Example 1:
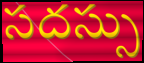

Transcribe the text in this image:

సదస్సు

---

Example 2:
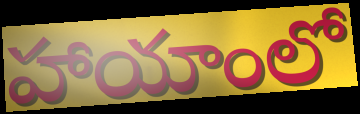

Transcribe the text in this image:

హాయాంలో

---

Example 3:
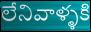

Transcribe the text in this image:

లేనివాళ్ళకి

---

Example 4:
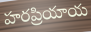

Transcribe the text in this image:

హరప్రియాయ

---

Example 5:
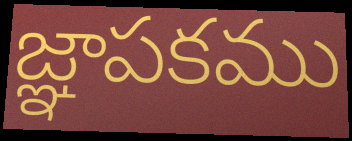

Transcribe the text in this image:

జ్ఞాపకము